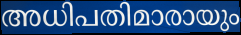
അധിപതിമാരായും